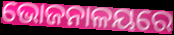
ଭୋଜନାଳୟରେ